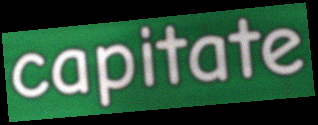
capitate